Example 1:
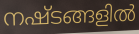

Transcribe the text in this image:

നഷ്ടങ്ങളിൽ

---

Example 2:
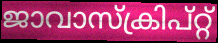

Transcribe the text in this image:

ജാവാസ്ക്രിപ്റ്റ്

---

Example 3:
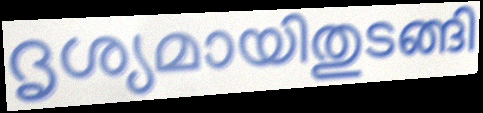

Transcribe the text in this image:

ദൃശ്യമായിതുടങ്ങി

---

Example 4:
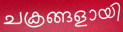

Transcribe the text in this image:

ചക്രങ്ങളായി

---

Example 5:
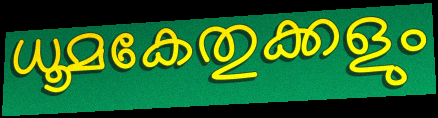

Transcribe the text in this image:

ധൂമകേതുക്കളും